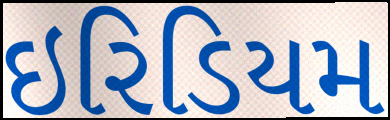
ઇરિડિયમ